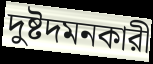
দুষ্টদমনকারী